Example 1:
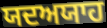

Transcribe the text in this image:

ਯਦਅਯਾਹ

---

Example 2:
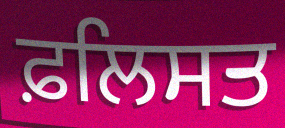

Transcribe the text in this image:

ਫ਼ਲਿਸਤ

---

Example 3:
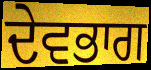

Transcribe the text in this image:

ਦੇਵਭਾਗ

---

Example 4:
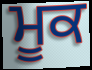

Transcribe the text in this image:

ਮੂਕ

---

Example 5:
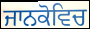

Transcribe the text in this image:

ਜਾਨਕੋਵਿਚ